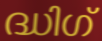
ദ്ധിഗ്